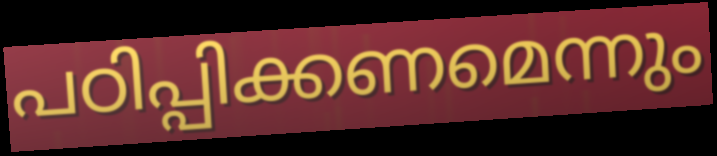
പഠിപ്പിക്കണമെന്നും